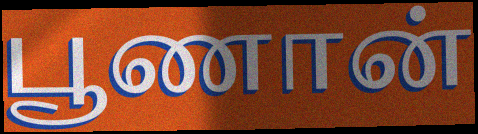
பூணான்